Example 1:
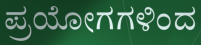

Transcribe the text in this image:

ಪ್ರಯೋಗಗಳಿಂದ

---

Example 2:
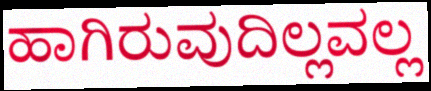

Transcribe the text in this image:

ಹಾಗಿರುವುದಿಲ್ಲವಲ್ಲ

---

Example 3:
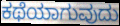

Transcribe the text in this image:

ಕಥೆಯಾಗುವುದು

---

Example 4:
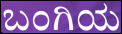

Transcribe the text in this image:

ಬಂಗಿಯ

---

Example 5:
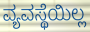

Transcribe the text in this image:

ವ್ಯವಸ್ಥೆಯಿಲ್ಲ